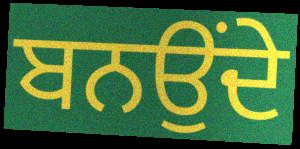
ਬਨਉਂਦੇ